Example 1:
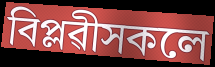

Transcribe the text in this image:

বিপ্লৱীসকলে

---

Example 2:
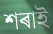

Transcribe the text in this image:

শৰাই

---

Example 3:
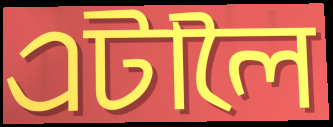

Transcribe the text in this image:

এটালৈ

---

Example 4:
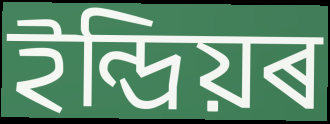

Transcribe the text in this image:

ইন্দ্ৰিয়ৰ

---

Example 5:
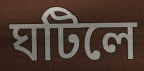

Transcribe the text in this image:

ঘটিলে